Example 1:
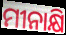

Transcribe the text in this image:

ମୀନାକ୍ଷି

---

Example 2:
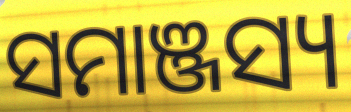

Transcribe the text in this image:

ସମାଞ୍ଜସ୍ୟ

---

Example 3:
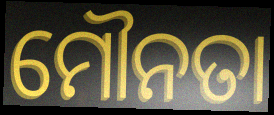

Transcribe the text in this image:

ମୌନତା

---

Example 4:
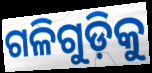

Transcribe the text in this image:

ଗଳିଗୁଡ଼ିକୁ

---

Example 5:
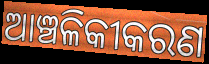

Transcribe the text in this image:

ଆଞ୍ଚଳିକୀକରଣ